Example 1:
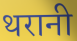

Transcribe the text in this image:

थरानी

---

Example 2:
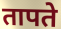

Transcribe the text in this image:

तापते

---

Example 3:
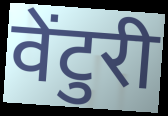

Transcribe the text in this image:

वेंटुरी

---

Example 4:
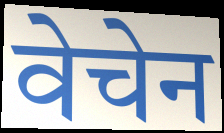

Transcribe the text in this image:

वेचेन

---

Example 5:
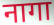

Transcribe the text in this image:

नागा